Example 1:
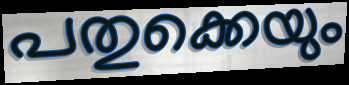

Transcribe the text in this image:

പതുക്കെയും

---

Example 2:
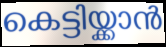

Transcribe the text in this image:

കെട്ടിയ്ക്കാൻ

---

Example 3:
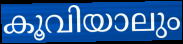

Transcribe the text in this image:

കൂവിയാലും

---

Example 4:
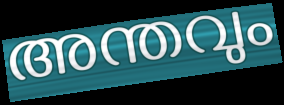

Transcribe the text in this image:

അന്തവും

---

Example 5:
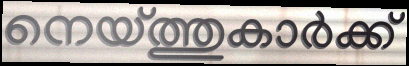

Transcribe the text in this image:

നെയ്ത്തുകാർക്ക്